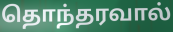
தொந்தரவால்